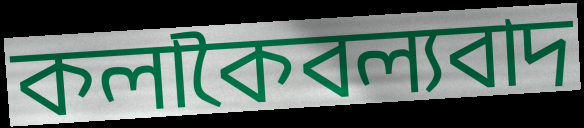
কলাকৈবল্যবাদ